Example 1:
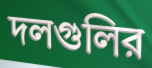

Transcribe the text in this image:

দলগুলির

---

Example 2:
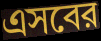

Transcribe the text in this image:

এসবের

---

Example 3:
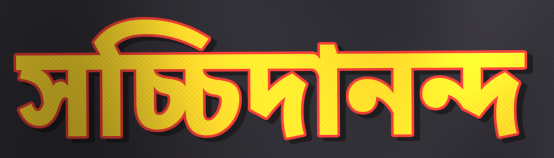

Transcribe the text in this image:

সচ্চিদানন্দ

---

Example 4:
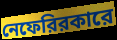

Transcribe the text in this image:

নেফেরিরকারে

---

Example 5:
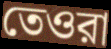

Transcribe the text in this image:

তেওরা